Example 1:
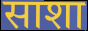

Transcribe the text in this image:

साशा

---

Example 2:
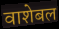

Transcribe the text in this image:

वाशेबल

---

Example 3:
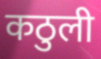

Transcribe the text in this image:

कठुली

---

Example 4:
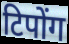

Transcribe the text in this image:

टिपोंग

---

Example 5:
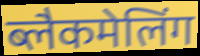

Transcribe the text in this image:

ब्लैकमेलिंग